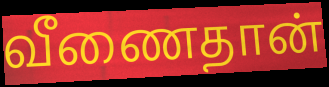
வீணைதான்